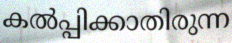
കൽപ്പിക്കാതിരുന്ന